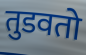
तुडवतो